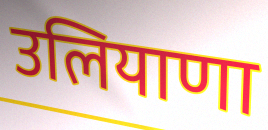
उलियाणा